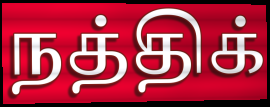
நத்திக்